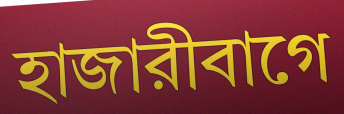
হাজারীবাগে